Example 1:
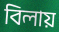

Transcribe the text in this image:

বিলায়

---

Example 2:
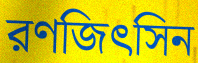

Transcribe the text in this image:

রণজিৎসিন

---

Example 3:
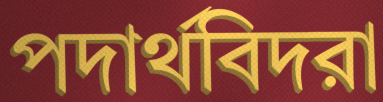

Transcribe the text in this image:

পদার্থবিদরা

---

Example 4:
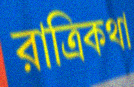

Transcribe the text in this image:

রাত্রিকথা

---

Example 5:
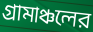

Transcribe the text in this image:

গ্রামাঞ্চলের